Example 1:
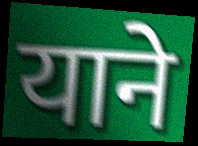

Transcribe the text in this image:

याने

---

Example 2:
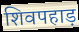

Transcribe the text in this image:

शिवपहाड़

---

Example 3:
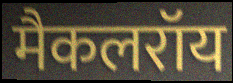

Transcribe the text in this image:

मैकलरॉय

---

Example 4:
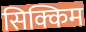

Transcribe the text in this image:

सिक्किम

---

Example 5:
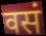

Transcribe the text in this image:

वसं